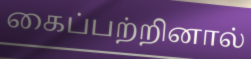
கைப்பற்றினால்